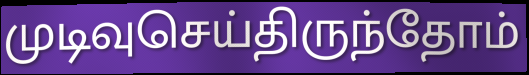
முடிவுசெய்திருந்தோம்